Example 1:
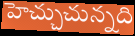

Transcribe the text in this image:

హెచ్చుచున్నది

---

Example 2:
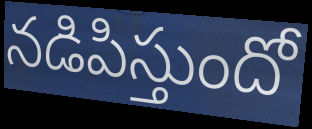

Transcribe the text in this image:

నడిపిస్తుందో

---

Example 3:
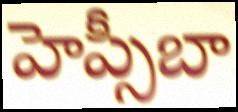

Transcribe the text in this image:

హెప్సీబా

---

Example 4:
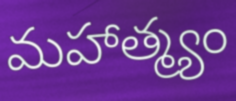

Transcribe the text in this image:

మహాత్మ్యం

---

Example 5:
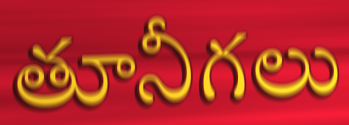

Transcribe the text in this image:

తూనీగలు